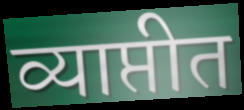
व्याप्तीत